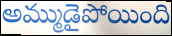
అమ్ముడైపోయింది